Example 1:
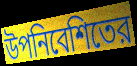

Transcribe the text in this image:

উপনিবেশিতের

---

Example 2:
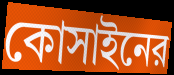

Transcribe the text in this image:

কোসাইনের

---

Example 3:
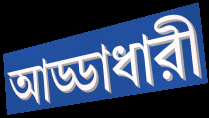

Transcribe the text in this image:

আড্ডাধারী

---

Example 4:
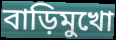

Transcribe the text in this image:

বাড়িমুখো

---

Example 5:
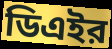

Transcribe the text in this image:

ডিএইর